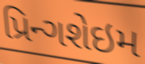
પ્રિન્ગશેઇમ